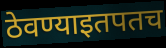
ठेवण्याइतपतच